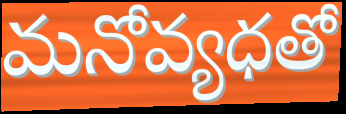
మనోవ్యధతో